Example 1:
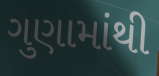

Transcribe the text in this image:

ગુણામાંથી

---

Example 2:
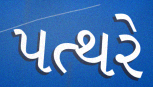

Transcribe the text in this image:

પત્થરે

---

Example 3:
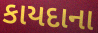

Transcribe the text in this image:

કાયદાના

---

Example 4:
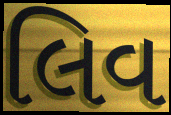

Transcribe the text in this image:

લિવ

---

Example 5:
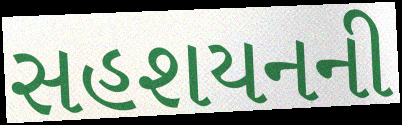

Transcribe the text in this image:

સહશયનની